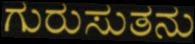
ಗುರುಸುತನು